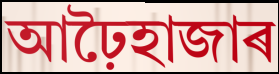
আঢ়ৈহাজাৰ